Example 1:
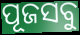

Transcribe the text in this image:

ପୂଜସବୁ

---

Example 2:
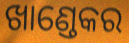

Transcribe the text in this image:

ଖାଣ୍ଡେକର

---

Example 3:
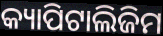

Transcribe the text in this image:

କ୍ୟାପିଟାଲିଜିମ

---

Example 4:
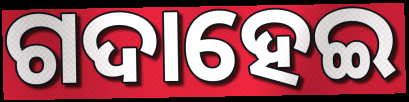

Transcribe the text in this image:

ଗଦାହେଇ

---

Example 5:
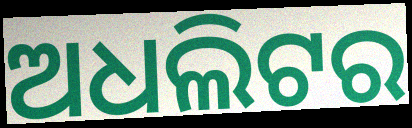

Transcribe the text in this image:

ଅଧଲିଟର